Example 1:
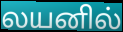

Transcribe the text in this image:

லயனில்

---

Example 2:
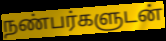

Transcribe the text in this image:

நண்பர்களுடன்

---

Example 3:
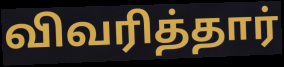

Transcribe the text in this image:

விவரித்தார்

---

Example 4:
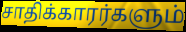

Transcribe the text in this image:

சாதிக்காரர்களும்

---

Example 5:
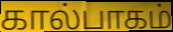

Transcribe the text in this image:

கால்பாகம்